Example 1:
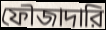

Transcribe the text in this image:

ফৌজাদারি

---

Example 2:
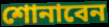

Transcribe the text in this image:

শোনাবেন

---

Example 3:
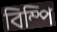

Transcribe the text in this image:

বিম্পি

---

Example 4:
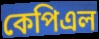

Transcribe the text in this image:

কেপিএল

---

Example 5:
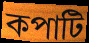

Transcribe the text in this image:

কপাটি